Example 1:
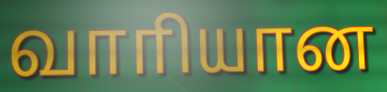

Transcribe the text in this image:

வாரியான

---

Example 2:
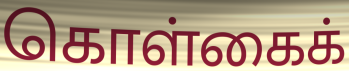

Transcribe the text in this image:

கொள்கைக்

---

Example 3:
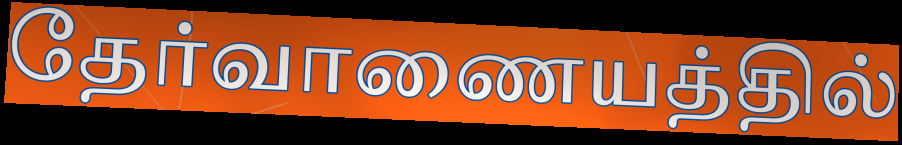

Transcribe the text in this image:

தேர்வாணையத்தில்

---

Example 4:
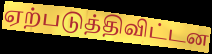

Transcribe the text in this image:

ஏற்படுத்திவிட்டன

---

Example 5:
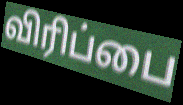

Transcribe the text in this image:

விரிப்பை